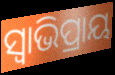
ସ୍ଵାଭିପ୍ରାୟ